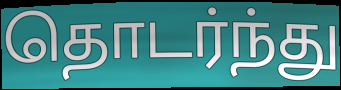
தொடர்ந்து